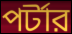
পর্টার